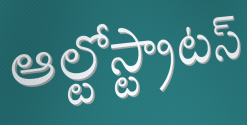
ఆల్టోస్ట్రాటస్